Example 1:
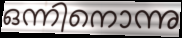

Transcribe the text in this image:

ഒന്നിനൊന്നു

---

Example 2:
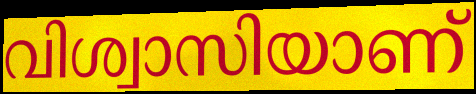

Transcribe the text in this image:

വിശ്വാസിയാണ്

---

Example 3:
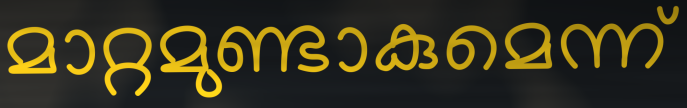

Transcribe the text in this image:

മാറ്റമുണ്ടാകുമെന്ന്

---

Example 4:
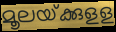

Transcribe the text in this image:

മൂലയ്‌ക്കുളള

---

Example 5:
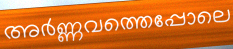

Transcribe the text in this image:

അർണ്ണവത്തെപ്പോലെ